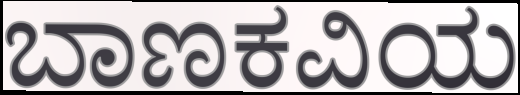
ಬಾಣಕವಿಯ